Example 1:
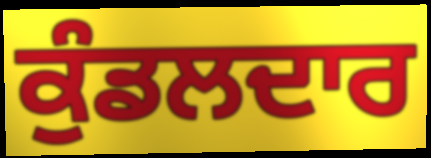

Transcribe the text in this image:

ਕੁੰਡਲਦਾਰ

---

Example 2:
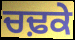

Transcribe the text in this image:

ਚਢ਼ਕੇ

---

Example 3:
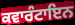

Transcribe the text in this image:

ਕਵਾਰੰਟਾਇਨ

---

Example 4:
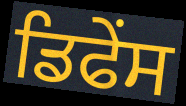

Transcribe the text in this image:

ਡਿਫੇਂਸ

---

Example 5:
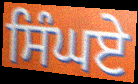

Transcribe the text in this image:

ਸਿੰਘਏ